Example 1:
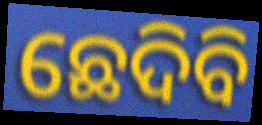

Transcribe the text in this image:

ଛେଦିବି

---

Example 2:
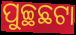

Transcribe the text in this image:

ପୁଚ୍ଛଛଟା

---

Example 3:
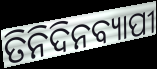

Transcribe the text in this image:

ତିନିଦିନବ୍ୟାପୀ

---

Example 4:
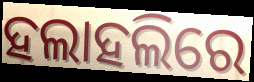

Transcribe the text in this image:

ହଲାହଲିରେ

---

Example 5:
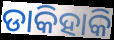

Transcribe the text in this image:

ଡାକିହାକି